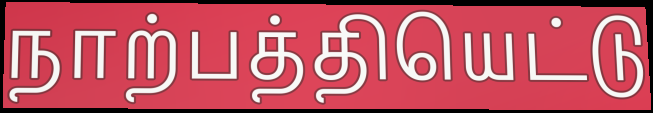
நாற்பத்தியெட்டு